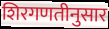
शिरगणतीनुसार